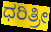
ಧರಿತ್ರೀ